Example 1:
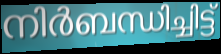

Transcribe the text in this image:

നിർബന്ധിച്ചിട്ട്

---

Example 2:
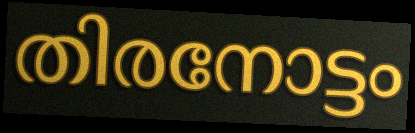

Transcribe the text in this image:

തിരനോട്ടം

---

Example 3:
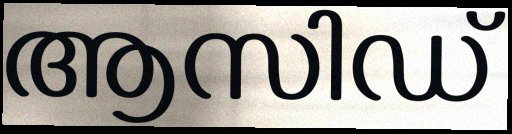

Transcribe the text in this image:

ആസിഡ്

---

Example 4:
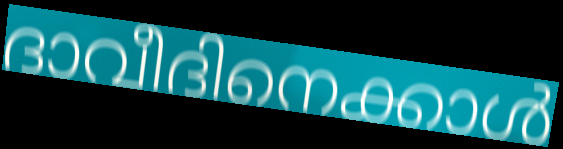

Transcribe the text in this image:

ദാവീദിനെക്കാൾ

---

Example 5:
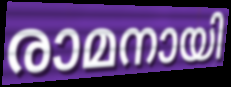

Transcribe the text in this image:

രാമനായി